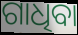
ଗାଧିବା